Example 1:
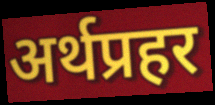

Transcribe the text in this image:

अर्थप्रहर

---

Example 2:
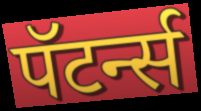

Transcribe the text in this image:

पॅटर्न्स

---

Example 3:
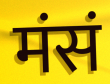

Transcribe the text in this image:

मंसं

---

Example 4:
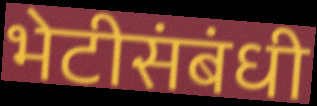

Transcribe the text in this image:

भेटीसंबंधी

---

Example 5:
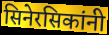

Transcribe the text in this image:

सिनेरसिकांनी